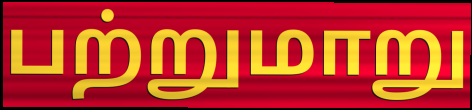
பற்றுமாறு